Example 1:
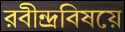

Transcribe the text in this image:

রবীন্দ্রবিষয়ে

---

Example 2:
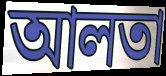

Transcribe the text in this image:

আলতা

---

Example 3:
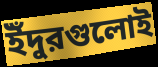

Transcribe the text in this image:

ইঁদুরগুলোই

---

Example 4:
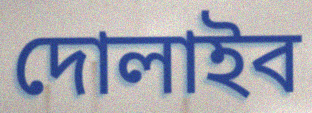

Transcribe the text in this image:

দোলাইব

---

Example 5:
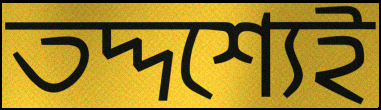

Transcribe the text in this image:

তদ্দশ্যেই